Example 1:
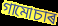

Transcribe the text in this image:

গামোচাৰ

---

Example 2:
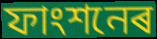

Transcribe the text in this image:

ফাংশনেৰ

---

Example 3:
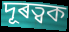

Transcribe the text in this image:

দূৰত্বক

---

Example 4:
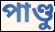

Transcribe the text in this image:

পাণ্ডু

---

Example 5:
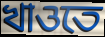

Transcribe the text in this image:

খাওতে